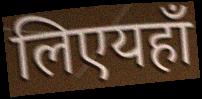
लिएयहाँ